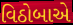
વિઠોબાએ